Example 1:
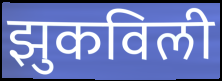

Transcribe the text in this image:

झुकविली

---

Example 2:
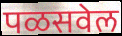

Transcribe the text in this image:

पळसवेल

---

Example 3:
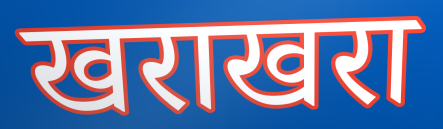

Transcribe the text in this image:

खराखरा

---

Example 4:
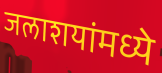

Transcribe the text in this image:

जलाशयांमध्ये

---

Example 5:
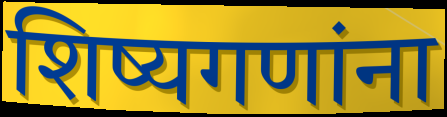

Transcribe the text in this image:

शिष्यगणांना